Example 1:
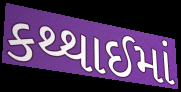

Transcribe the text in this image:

કથ્થાઈમાં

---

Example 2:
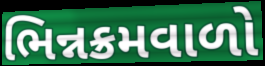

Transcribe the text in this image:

ભિન્નક્રમવાળો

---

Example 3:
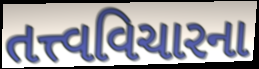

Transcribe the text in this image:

તત્ત્વવિચારના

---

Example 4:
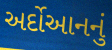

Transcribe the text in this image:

અર્દોઆનનું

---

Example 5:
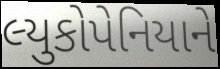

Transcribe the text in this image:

લ્યુકોપેનિયાને